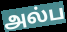
அல்ப